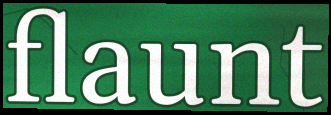
flaunt